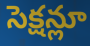
సెక్షన్లూ